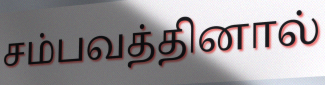
சம்பவத்தினால்